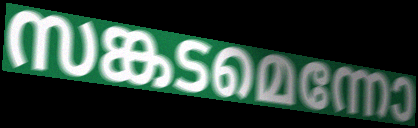
സങ്കടമെന്നോ